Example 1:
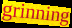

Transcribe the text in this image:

grinning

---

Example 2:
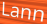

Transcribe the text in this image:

Lann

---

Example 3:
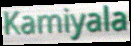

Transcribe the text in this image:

Kamiyala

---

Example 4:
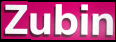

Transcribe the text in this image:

Zubin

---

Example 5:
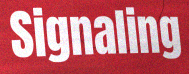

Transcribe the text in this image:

Signaling